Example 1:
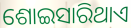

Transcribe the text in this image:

ଶୋଇସାରିଥାଏ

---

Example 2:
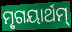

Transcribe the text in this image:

ମୃଗୟାର୍ଥମ୍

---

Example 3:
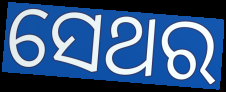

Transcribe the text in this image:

ସେଥର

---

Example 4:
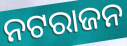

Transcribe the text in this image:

ନଟରାଜନ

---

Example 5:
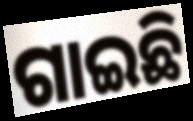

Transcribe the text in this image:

ଗାଇଛି